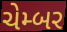
ચેમ્બર